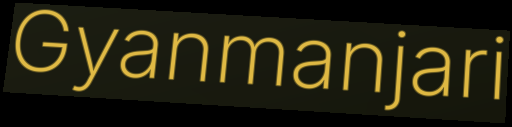
Gyanmanjari